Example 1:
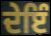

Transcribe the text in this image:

ਦੇਇੰ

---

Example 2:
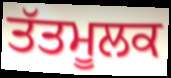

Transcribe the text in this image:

ਤੱਤਮੂਲਕ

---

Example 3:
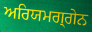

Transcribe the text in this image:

ਅਰਿਯਮਗ੍ਗੇਨ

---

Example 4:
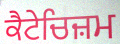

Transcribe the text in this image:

ਕੈਟੇਚਿਜ਼ਮ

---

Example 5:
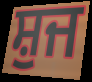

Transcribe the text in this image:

ਸ਼ੁਜ